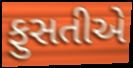
ફુસતીએ